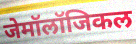
जेमॉलॉजिकल